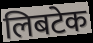
लिबटेक